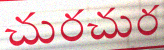
చురచుర